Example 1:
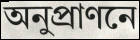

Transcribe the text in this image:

অনুপ্রাণনে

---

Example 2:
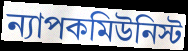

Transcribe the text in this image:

ন্যাপকমিউনিস্ট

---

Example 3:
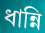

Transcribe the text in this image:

ধান্নি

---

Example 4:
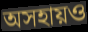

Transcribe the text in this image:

অসহায়ও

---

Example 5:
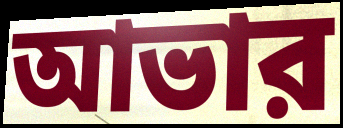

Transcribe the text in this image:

আভার